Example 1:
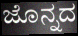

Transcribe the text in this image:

ಜೊನ್ನದ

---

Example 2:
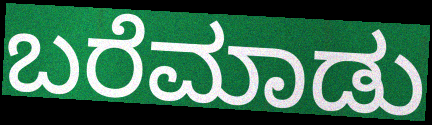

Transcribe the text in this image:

ಬರೆಮಾಡು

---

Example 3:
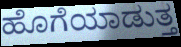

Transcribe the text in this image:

ಹೊಗೆಯಾಡುತ್ತ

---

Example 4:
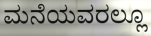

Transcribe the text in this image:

ಮನೆಯವರಲ್ಲೂ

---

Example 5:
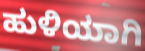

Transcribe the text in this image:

ಹುಳಿಯಾಗಿ